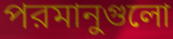
পরমানুগুলো